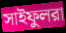
সাইফুলরা